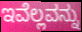
ಇವೆಲ್ಲವನ್ನು